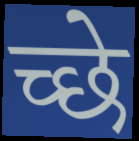
च्छे